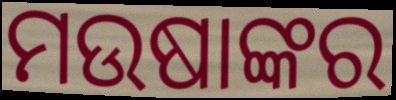
ମଉଷାଙ୍କର